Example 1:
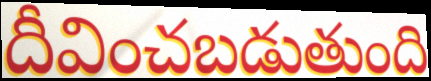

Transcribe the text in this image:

దీవించబడుతుంది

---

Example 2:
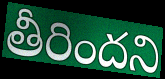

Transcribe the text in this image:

తీరిందని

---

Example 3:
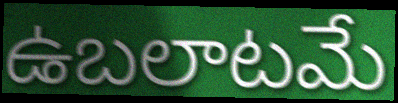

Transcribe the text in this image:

ఉబలాటమే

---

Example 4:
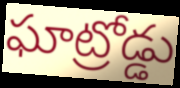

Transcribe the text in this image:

ఘాట్రోడ్డు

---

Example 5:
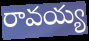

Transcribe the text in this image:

రావయ్య